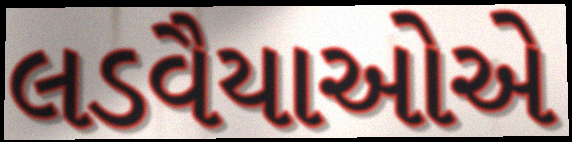
લડવૈયાઓએ